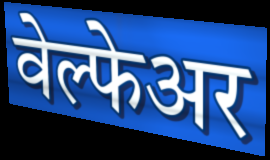
वेल्फेअर